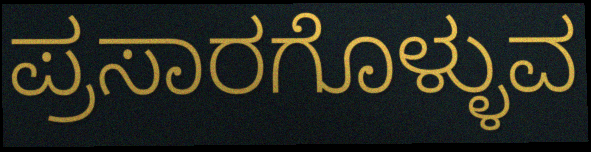
ಪ್ರಸಾರಗೊಳ್ಳುವ